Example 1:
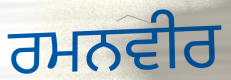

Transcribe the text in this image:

ਰਮਨਵੀਰ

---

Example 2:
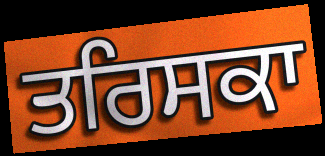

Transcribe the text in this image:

ਤਰਿਸਕਾ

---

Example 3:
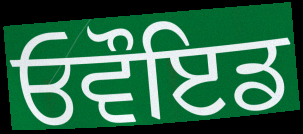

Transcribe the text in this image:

ਓਵੌਇਡ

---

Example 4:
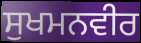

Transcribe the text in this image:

ਸੁਖਮਨਵੀਰ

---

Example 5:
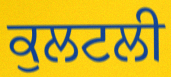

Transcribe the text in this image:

ਕੁਲਟਲੀ